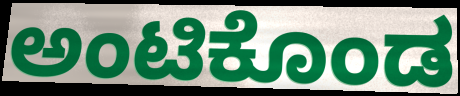
ಅಂಟಿಕೊಂಡ